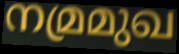
നമ്രമുഖ